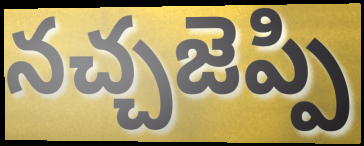
నచ్చజెప్పి